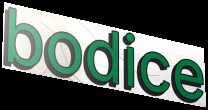
bodice